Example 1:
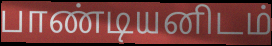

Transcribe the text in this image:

பாண்டியனிடம்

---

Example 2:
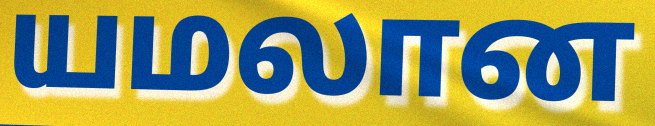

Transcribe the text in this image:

யமலான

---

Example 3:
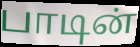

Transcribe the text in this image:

பாடின்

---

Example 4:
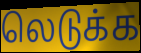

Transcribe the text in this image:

லெடுக்க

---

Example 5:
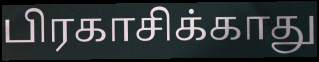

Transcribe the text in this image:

பிரகாசிக்காது